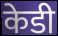
केडी